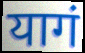
यागं